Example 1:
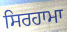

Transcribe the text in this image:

ਸਿਰਹਾਮਾ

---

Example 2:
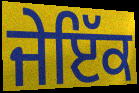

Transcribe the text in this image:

ਜੇਇੱਕ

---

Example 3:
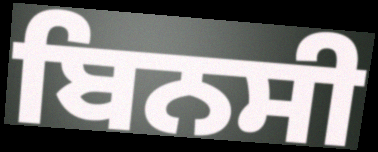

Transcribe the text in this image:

ਬਿਨਸੀ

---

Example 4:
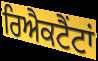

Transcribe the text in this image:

ਰਿਐਕਟੈਂਟਾਂ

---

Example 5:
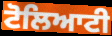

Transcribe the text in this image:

ਟੋਲਿਆਟੀ